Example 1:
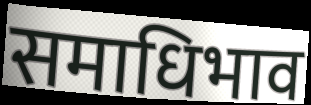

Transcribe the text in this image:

समाधिभाव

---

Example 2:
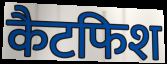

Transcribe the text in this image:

कैटफिश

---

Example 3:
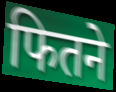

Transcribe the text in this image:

फितने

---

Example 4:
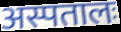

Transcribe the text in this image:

अस्पतालः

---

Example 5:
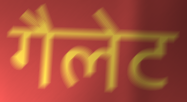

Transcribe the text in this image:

गैलेट